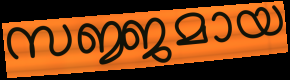
സജ്ജമായ